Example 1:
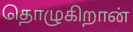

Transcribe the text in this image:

தொழுகிறான்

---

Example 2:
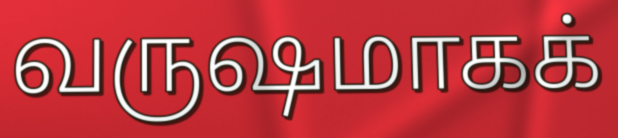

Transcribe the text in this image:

வருஷமாகக்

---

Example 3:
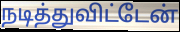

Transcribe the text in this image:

நடித்துவிட்டேன்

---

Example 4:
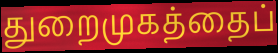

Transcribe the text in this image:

துறைமுகத்தைப்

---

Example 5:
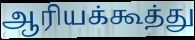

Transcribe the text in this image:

ஆரியக்கூத்து